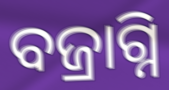
ବଜ୍ରାଗ୍ନି